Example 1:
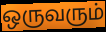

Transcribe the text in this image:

ஒருவரும்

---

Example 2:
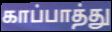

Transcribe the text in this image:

காப்பாத்து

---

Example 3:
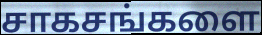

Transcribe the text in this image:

சாகசங்களை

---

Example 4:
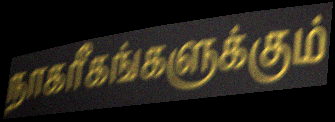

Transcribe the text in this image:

நாகரீகங்களுக்கும்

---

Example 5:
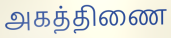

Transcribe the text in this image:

அகத்திணை